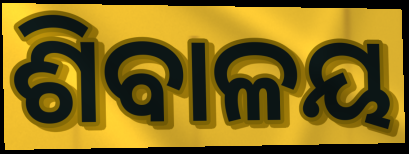
ଶିବାଳୟ